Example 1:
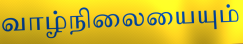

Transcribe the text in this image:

வாழ்நிலையையும்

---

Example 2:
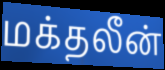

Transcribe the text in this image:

மக்தலீன்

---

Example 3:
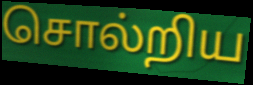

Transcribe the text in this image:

சொல்றிய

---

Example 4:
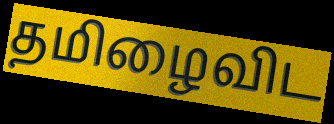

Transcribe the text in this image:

தமிழைவிட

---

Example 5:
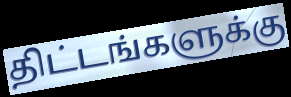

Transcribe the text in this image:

திட்டங்களுக்கு